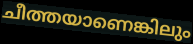
ചീത്തയാണെങ്കിലും